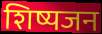
शिष्यजन